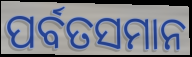
ପର୍ବତସମାନ